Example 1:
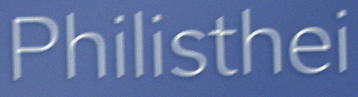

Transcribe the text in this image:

Philisthei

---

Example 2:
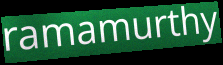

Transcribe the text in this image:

ramamurthy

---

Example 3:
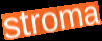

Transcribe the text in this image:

stroma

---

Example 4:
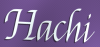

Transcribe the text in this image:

Hachi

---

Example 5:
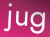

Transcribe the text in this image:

jug